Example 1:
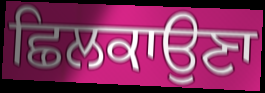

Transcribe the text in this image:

ਛਿਲਕਾਉਣਾ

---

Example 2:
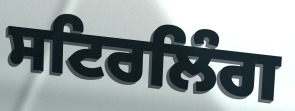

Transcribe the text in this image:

ਸਟਿਰਲਿੰਗ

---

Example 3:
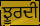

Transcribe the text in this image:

ਝੂਰਦੀ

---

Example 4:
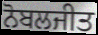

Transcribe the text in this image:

ਨੋਬਲਜੀਤ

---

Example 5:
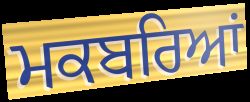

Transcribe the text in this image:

ਮਕਬਰਿਆਂ